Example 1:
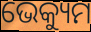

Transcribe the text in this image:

ଭେକ୍ୟୁମ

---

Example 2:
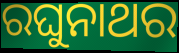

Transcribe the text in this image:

ରଘୁନାଥର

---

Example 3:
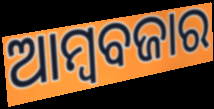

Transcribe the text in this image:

ଆମ୍ୱବଜାର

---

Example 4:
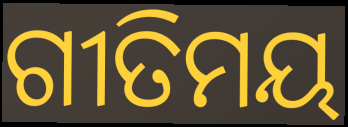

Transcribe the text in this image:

ଗୀତିମୟ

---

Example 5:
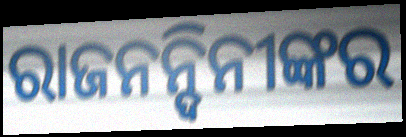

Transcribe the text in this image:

ରାଜନନ୍ଦିନୀଙ୍କର